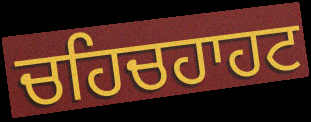
ਚਹਿਚਹਾਹਟ